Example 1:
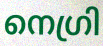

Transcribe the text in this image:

നെഗ്രി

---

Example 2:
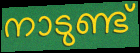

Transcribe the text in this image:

നാടുണ്ട്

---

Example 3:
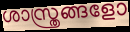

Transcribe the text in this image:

ശാസ്ത്രങ്ങളോ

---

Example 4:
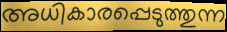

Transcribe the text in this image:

അധികാരപ്പെടുത്തുന്ന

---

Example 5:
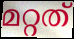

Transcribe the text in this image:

മറ്റത്